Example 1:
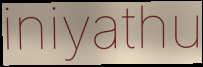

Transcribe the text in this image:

iniyathu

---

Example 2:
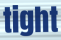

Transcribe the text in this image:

tight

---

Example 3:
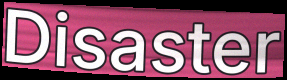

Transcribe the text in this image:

Disaster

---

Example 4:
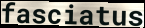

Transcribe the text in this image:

fasciatus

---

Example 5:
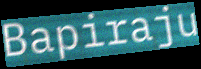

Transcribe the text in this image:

Bapiraju